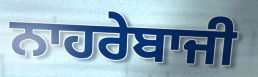
ਨਾਹਰੇਬਾਜੀ